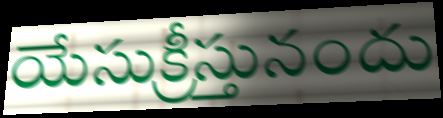
యేసుక్రీస్తునందు